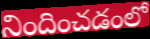
నిందించడంలో